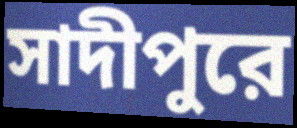
সাদীপুরে